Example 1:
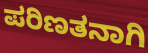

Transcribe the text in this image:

ಪರಿಣತನಾಗಿ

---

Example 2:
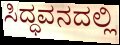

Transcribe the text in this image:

ಸಿದ್ಧವನದಲ್ಲಿ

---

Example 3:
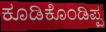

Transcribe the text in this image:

ಕೂಡಿಕೊಂಡಿಪ್ಪ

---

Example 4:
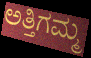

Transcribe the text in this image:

ಅತ್ತಿಗಮ್ಮ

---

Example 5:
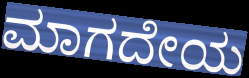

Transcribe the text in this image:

ಮಾಗದೇಯ